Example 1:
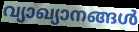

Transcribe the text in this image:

വ്യാഖ്യാനങ്ങൾ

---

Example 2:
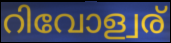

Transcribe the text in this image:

റിവോള്വര്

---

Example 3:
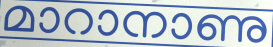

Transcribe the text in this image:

മാറാനാണു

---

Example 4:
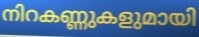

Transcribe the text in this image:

നിറകണ്ണുകളുമായി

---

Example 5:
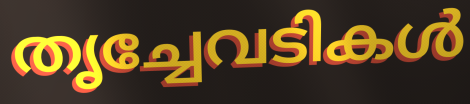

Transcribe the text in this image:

തൃച്ചേവടികൾ